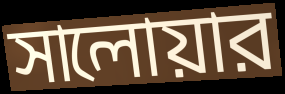
সালোয়ার